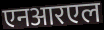
एनआरएल